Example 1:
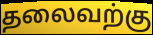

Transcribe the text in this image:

தலைவற்கு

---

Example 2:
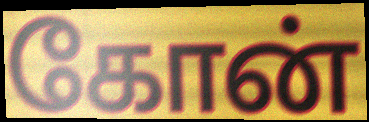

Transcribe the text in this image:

கோன்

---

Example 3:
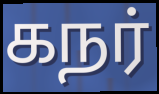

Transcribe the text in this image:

கநர்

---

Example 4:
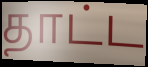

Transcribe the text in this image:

தாட்ட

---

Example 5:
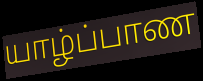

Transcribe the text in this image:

யாழ்ப்பாண